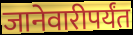
जानेवारीपर्यंत